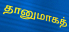
தானுமாகத்